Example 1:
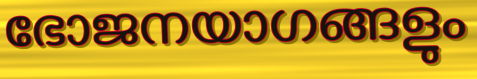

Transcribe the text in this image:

ഭോജനയാഗങ്ങളും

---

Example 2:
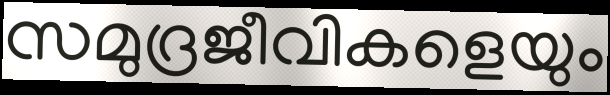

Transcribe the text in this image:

സമുദ്രജീവികളെയും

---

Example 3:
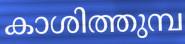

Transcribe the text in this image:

കാശിത്തുമ്പ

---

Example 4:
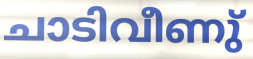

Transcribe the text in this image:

ചാടിവീണു്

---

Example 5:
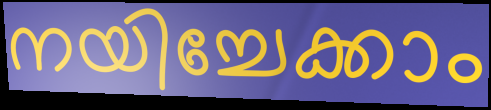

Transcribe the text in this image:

നയിച്ചേക്കാം